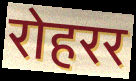
रोहरर